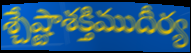
శ్చేష్టాశక్తిముదీర్య